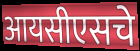
आयसीएसचे